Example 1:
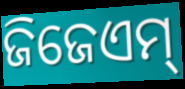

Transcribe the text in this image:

ଜିଜେଏମ୍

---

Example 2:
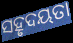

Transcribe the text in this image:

ସହୃଦୟତା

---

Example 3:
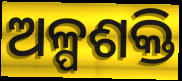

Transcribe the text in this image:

ଅଳ୍ପଶକ୍ତି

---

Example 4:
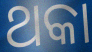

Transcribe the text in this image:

ଥକା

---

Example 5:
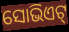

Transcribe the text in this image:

ସୋଭିଏଟ୍